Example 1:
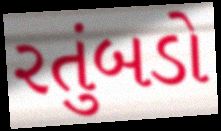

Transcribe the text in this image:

રતુંબડો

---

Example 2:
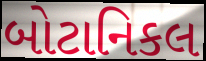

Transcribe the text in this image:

બોટાનિકલ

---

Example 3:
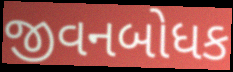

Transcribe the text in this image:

જીવનબોધક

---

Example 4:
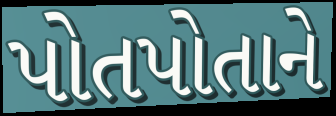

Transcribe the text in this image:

પોતપોતાને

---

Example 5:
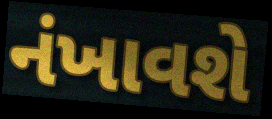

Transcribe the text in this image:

નંખાવશે